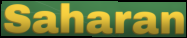
Saharan